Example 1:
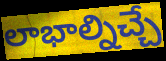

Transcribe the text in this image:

లాభాల్నిచ్చే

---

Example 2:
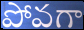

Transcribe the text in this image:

పోవగా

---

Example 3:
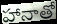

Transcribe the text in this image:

హానాతో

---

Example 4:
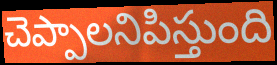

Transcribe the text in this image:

చెప్పాలనిపిస్తుంది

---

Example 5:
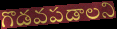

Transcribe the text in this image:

గొడవపడాలని